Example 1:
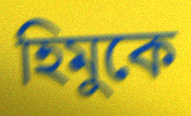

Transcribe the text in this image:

হিমুকে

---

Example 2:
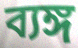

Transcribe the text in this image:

ব্যঙ্গ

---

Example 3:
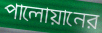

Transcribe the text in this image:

পালোয়ানের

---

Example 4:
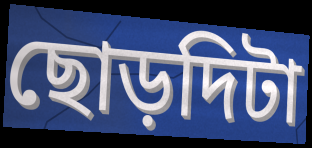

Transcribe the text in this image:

ছোড়দিটা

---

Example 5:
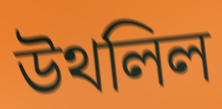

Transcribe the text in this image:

উথলিল